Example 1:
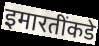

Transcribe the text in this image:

इमारतींकडे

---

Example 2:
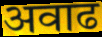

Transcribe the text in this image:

अवाढ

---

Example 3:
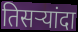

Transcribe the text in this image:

तिसऱ्यांदा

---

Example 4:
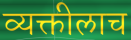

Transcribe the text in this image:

व्यक्तीलाच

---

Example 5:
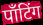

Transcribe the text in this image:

पाँटिंग